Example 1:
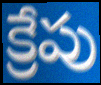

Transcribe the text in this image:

క్రేపు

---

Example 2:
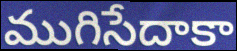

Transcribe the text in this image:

ముగిసేదాకా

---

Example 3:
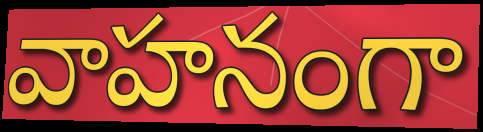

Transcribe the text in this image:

వాహనంగా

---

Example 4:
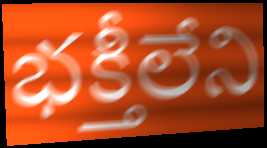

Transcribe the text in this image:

భక్తీలేని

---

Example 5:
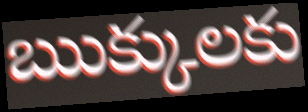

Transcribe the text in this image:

ఋక్కులకు